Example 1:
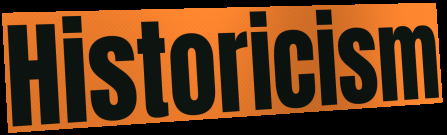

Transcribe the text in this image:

Historicism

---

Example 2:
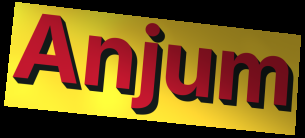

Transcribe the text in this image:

Anjum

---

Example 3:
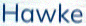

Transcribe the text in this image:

Hawke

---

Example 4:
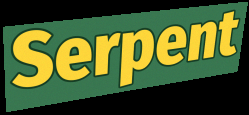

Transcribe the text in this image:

Serpent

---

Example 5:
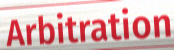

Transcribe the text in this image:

Arbitration